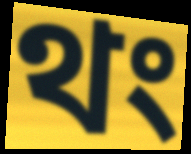
থং